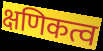
क्षणिकत्व